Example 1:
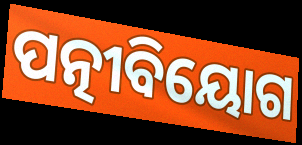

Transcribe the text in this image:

ପତ୍ନୀବିୟୋଗ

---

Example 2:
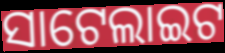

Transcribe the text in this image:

ସାଟେଲାଇଟ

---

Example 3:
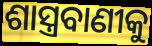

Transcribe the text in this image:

ଶାସ୍ତ୍ରବାଣୀକୁ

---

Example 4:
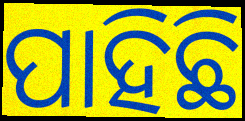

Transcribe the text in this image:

ପାହିଛି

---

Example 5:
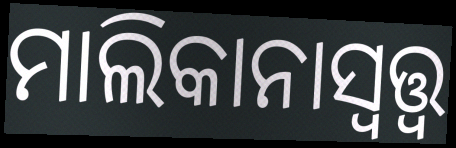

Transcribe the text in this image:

ମାଲିକାନାସ୍ୱତ୍ତ୍ୱ